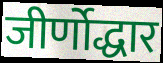
जीर्णोद्धार